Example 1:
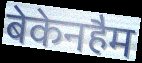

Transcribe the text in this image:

बेकेनहैम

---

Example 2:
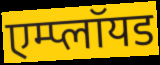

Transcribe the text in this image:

एम्प्लॉयड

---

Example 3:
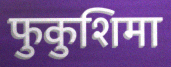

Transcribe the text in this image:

फुकुशिमा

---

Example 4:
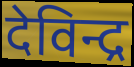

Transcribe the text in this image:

देविन्द्र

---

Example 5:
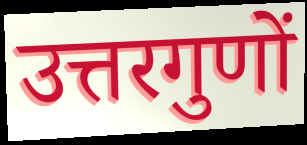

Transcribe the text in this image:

उत्तरगुणों